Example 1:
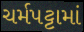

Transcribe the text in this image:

ચર્મપટ્ટામાં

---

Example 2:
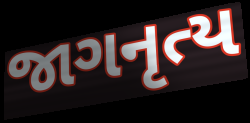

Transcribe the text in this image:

જાગનૃત્ય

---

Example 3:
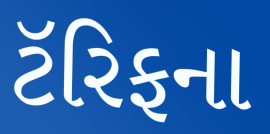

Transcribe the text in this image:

ટૅરિફના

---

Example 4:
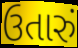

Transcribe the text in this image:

ઉતારું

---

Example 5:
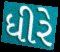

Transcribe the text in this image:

ધીરે